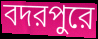
বদরপুরে